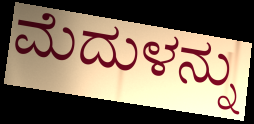
ಮೆದುಳನ್ನು